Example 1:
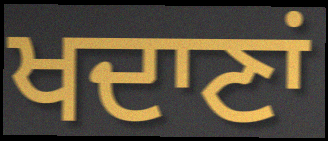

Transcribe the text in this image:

ਖਦਾਣਾਂ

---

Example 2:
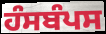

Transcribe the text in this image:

ਹੰਸਬੰਪਸ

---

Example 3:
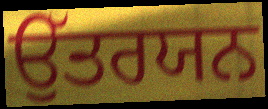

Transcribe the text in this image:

ਉੱਤਰਯਨ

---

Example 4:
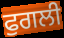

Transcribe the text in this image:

ਫੁਗਲੀ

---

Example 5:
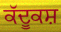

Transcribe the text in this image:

ਕੱਦੂਕਸ਼